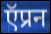
ऍप्रन